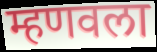
म्हणवला